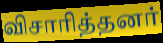
விசாரித்தனர்